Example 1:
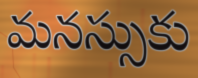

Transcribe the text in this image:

మనస్సుకు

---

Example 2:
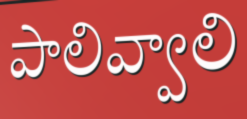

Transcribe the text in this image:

పాలివ్వాలి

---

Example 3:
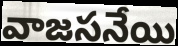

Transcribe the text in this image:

వాజసనేయి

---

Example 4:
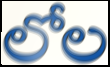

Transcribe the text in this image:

లోల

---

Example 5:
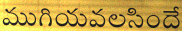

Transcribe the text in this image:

ముగియవలసిందే